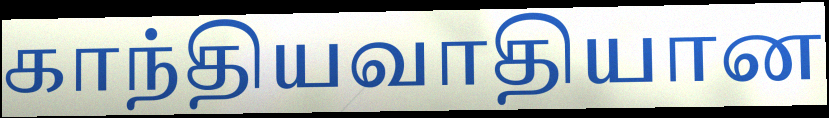
காந்தியவாதியான